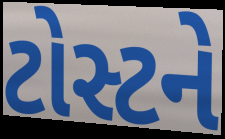
ટોસ્ટને